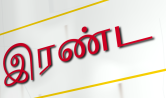
இரண்ட